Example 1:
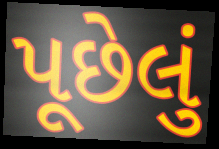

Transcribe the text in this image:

પૂછેલું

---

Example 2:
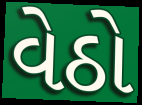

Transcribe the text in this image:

વેઠો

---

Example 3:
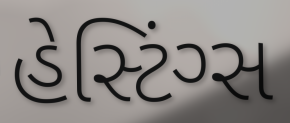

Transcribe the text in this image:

હેસ્ટિંગ્સ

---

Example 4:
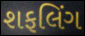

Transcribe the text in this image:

શફલિંગ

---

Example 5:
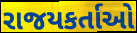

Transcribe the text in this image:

રાજયકર્તાઓ